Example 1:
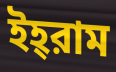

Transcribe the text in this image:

ইহ্‌রাম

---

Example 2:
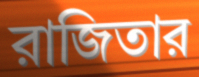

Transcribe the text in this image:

রাজিতার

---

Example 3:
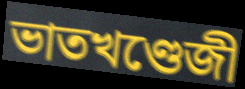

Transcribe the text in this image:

ভাতখণ্ডেজী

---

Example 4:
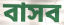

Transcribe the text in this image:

বাসব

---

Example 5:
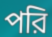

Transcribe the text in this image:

পরি